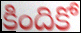
కిందికో